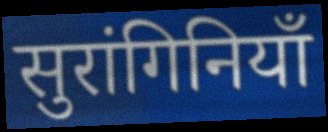
सुरांगिनियाँ